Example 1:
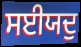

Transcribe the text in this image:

ਸਈਯਦੁ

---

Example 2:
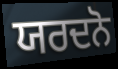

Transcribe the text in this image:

ਯਰਦਨੋ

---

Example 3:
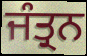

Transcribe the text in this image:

ਜੰਤ੍ਰਨ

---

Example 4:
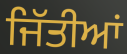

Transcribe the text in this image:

ਜਿੱਤੀਆਂ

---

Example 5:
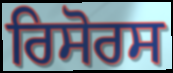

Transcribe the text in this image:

ਰਿਸੋਰਸ